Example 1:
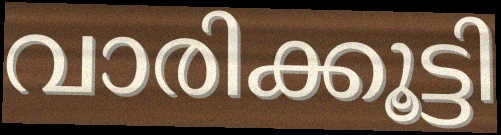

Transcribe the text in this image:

വാരിക്കൂട്ടി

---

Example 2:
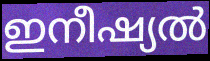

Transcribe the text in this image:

ഇനീഷ്യൽ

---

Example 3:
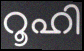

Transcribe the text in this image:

റൂഹി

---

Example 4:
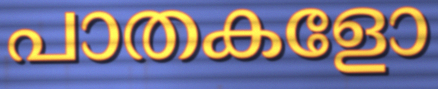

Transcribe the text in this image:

പാതകളോ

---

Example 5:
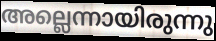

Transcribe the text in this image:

അല്ലെന്നായിരുന്നു